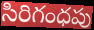
సిరిగంధపు